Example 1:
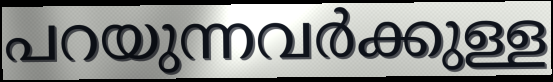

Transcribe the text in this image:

പറയുന്നവർക്കുള്ള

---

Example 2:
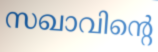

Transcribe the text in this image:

സഖാവിന്റെ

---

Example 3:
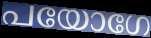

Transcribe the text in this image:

പയോഗേ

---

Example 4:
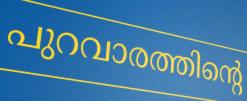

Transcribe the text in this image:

പുറവാരത്തിന്റെ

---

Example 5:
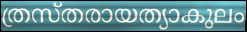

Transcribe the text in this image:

ത്രസ്തരായത്യാകുലം